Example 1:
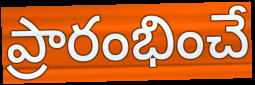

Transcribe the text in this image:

ప్రారంభించే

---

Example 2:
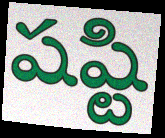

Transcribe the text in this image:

షష్టి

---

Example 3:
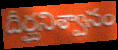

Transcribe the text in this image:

దీర్ఘనిశ్వాసం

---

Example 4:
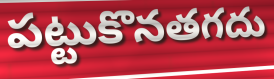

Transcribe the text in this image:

పట్టుకొనతగదు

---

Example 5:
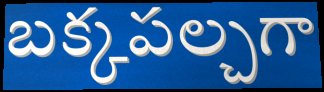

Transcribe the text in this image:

బక్కపల్చగా